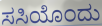
ಸಸಿಯೊಂದು